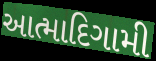
આત્માદિગામી